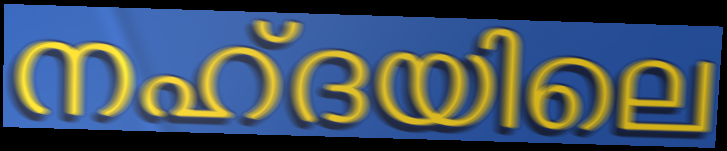
നഹ്ദയിലെ